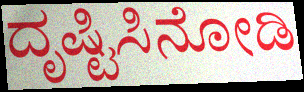
ದೃಷ್ಟಿಸಿನೋಡಿ